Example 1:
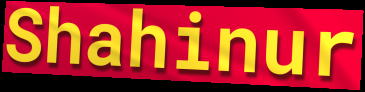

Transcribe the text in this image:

Shahinur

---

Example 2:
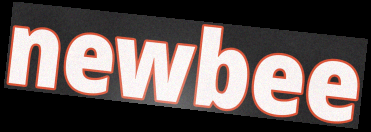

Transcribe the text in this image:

newbee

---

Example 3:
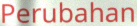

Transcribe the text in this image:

Perubahan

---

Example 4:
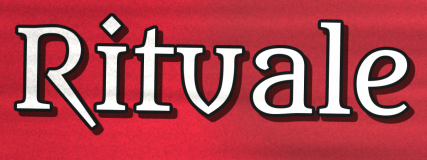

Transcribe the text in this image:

Rituale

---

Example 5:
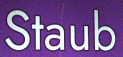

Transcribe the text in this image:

Staub